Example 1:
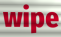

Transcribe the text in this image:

wipe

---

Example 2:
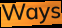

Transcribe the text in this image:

Ways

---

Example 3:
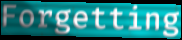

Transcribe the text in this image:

Forgetting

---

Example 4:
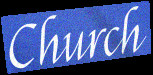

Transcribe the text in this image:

Church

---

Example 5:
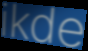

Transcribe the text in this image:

ikde